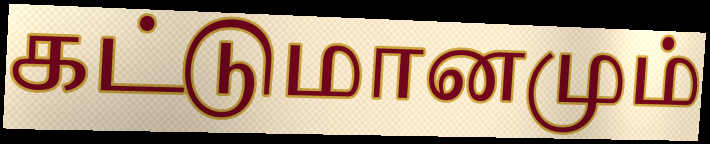
கட்டுமானமும்